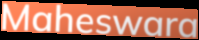
Maheswara